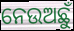
ନେଉଅଛୁଁ